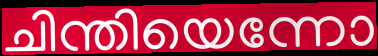
ചിന്തിയെന്നോ